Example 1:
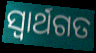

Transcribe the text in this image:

ସ୍ୱାର୍ଥଗତ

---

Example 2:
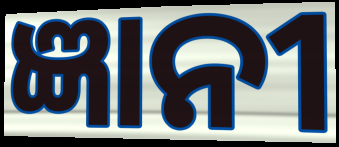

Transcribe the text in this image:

ଜ୍ଞାନୀ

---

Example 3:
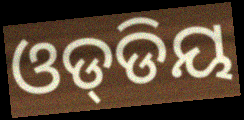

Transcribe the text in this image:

ଓଡ୍‌ଡିୟ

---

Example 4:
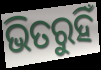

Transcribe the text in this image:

ଭିତରୁହିଁ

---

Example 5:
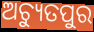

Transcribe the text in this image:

ଅଚ୍ୟୁତପୁର